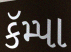
કૅમ્પા